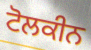
ਟੋਲਕੀਨ